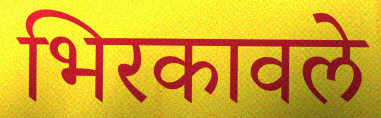
भिरकावले